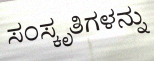
ಸಂಸ್ಕೃತಿಗಳನ್ನು